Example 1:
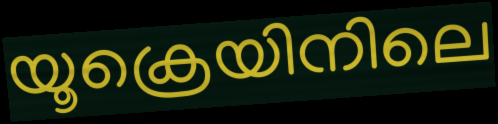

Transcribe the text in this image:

യൂക്രെയിനിലെ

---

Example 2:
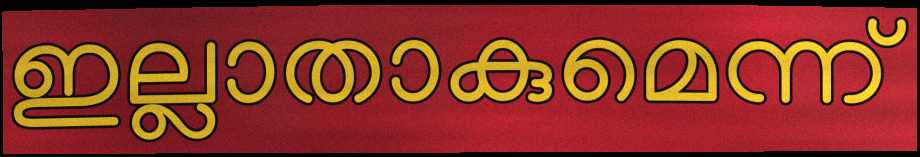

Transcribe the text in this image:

ഇല്ലാതാകുമെന്ന്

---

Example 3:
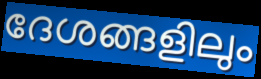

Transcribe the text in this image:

ദേശങ്ങളിലും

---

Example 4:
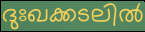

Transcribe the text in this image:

ദുഃഖക്കടലിൽ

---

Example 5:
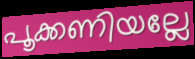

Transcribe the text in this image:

പൂക്കണിയല്ലേ